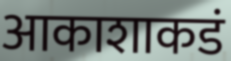
आकाशाकडं